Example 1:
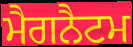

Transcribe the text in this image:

ਮੈਗਨੈਟਮ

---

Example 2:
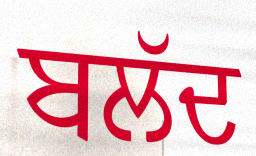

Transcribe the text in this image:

ਬਲੱਦ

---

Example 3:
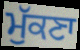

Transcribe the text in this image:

ਮੁੱਕਣਾ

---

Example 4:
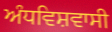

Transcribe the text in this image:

ਅੰਧਵਿਸ਼ਵਾਸੀ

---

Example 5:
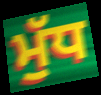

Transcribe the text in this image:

ਮੁੱਧ